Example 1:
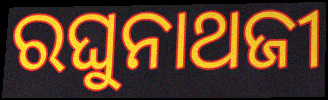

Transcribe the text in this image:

ରଘୁନାଥଜୀ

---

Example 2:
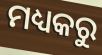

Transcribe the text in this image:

ମଧ୍ୟକରୁ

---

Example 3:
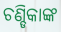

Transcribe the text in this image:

ଚଣ୍ଡିକାଙ୍କ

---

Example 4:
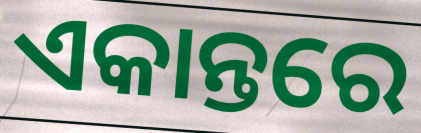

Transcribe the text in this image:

ଏକାନ୍ତରେ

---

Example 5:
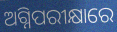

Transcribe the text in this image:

ଅଗ୍ନିପରୀକ୍ଷାରେ